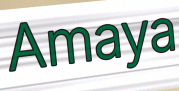
Amaya